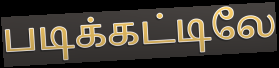
படிக்கட்டிலே